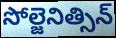
సోల్జెనిత్సిన్